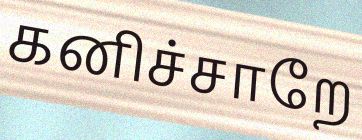
கனிச்சாறே